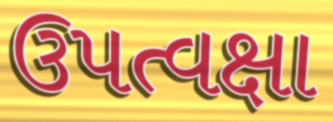
ઉપત્વક્ષા